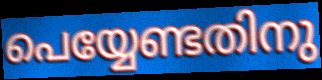
പെയ്യേണ്ടതിനു